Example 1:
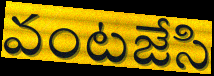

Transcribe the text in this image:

వంటజేసి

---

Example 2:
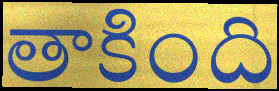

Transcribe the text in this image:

తాకింది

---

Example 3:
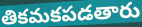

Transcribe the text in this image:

తికమకపడతారు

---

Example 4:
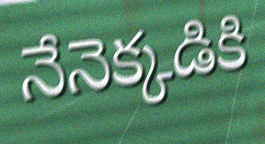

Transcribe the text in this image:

నేనెక్కడికి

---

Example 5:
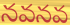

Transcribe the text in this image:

నవనవ